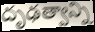
దృఢత్వాన్ని